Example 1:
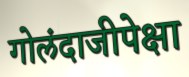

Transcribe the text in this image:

गोलंदाजीपेक्षा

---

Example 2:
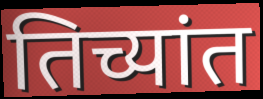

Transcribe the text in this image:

तिच्यांत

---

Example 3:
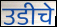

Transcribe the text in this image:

उडीचे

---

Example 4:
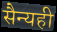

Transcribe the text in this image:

सैन्यही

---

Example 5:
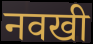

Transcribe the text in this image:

नवखी